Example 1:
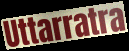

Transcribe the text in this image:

Uttarratra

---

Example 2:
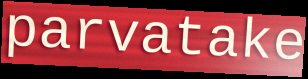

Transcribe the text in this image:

parvatake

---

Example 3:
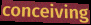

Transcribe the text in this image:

conceiving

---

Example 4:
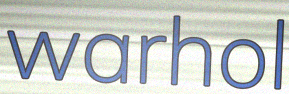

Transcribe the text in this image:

warhol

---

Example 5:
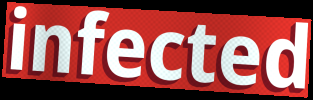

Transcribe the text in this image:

infected